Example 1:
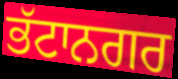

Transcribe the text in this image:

ਭੱਟਾਨਗਰ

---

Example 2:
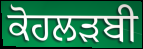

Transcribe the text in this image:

ਕੋਹਲੜਬੀ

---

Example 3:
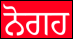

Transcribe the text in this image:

ਨੋਗਹ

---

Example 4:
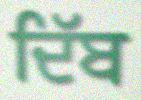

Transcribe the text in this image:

ਦਿੱਬ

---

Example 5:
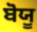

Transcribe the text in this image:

ਬੋਯੂ